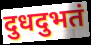
दुधदुभतं